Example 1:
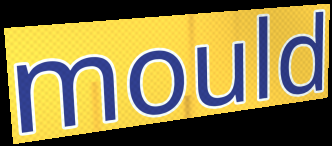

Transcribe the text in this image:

mould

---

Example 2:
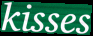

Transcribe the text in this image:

kisses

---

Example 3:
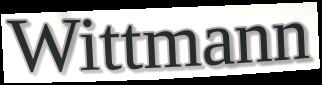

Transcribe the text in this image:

Wittmann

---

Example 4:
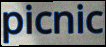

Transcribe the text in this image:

picnic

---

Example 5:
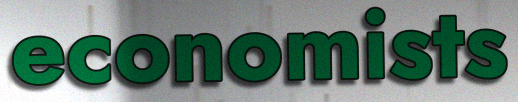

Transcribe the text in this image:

economists